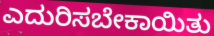
ಎದುರಿಸಬೇಕಾಯಿತು